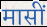
मासीं